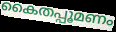
കൈതപ്പൂമണം